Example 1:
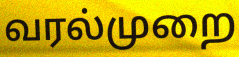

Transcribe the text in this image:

வரல்முறை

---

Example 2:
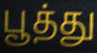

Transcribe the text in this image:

பூத்து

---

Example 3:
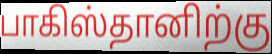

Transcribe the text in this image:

பாகிஸ்தானிற்கு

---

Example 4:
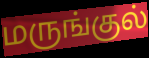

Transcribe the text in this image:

மருங்குல்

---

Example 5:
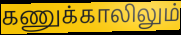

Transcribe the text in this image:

கணுக்காலிலும்